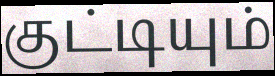
குட்டியும்